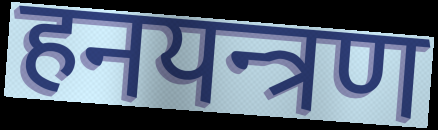
हनयन्त्रण